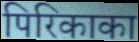
पिरिकाका